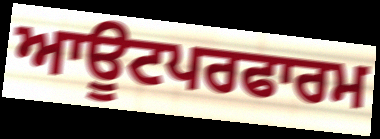
ਆਊਟਪਰਫਾਰਮ